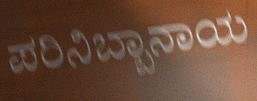
ಪರಿನಿಬ್ಬಾನಾಯ